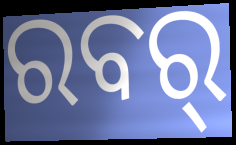
ରବର୍